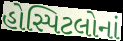
હોસ્પિટલોનાં